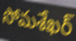
సోమశేఖర్